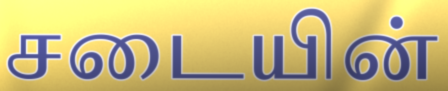
சடையின்